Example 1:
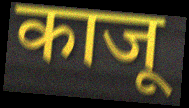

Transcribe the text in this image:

काजू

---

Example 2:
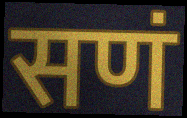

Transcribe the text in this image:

सणं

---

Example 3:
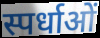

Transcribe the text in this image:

स्पर्धाओं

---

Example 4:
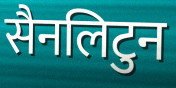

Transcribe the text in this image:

सैनलिटुन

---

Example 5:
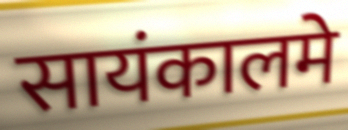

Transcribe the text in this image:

सायंकालमे